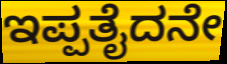
ಇಪ್ಪತೈದನೇ